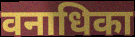
वनाधिका